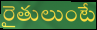
రైతులుంటే